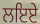
ਲਇਏ